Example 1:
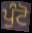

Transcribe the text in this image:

ਪੁੰਟੋ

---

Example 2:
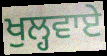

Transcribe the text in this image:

ਖੁਲ੍ਹਵਾਏ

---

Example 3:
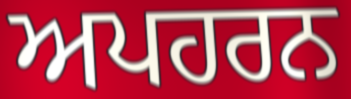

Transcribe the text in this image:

ਅਪਹਰਨ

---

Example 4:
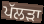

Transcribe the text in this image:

ਪੱਲੜਾ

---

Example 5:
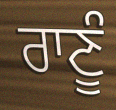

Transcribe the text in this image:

ਰਾਣੂੰ